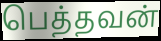
பெத்தவன்